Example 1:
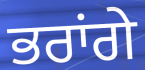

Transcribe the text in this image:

ਭਰਾਂਗੇ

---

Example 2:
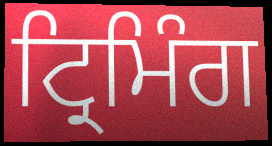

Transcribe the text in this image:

ਟ੍ਰਿਮਿੰਗ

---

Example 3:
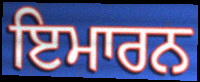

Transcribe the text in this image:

ਇਮਾਰਨ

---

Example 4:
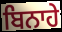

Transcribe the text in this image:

ਬਿਨਾਹੇ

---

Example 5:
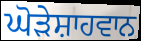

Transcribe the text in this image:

ਘੋੜੇਸ਼ਾਹਵਾਨ